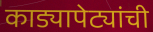
काड्यापेट्यांची